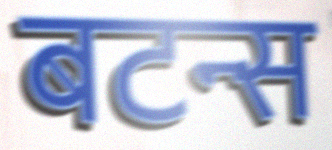
बटन्स